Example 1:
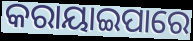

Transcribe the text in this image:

କରାୟାଇପାରେ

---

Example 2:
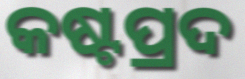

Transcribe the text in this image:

କଷ୍ଟପ୍ରଦ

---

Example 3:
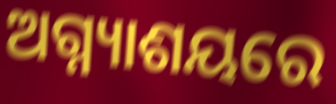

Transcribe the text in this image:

ଅଗ୍ନ୍ୟାଶୟରେ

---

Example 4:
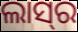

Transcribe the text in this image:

ଲାସ୍‍ର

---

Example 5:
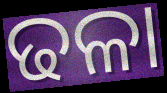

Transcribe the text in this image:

ଢଳା